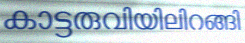
കാട്ടരുവിയിലിറങ്ങി